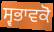
ਸ੍ਵਭਾਵਕੋ